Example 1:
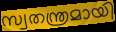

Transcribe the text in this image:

സ്വതന്ത്രമായി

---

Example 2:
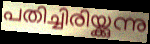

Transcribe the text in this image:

പതിച്ചിരിയ്ക്കുന്നു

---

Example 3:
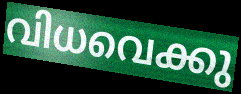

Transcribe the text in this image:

വിധവെക്കു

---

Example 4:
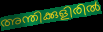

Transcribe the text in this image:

അന്തിക്കുളിരിൽ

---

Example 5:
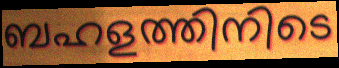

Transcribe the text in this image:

ബഹളത്തിനിടെ